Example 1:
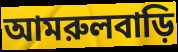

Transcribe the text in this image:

আমরুলবাড়ি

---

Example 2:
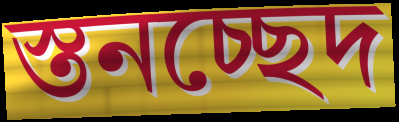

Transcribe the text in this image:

স্তনচ্ছেদ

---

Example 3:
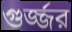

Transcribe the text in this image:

গুর্জ্জর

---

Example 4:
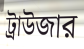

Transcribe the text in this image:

ট্রাউজার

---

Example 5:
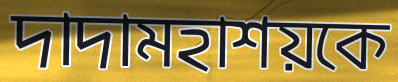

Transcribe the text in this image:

দাদামহাশয়কে